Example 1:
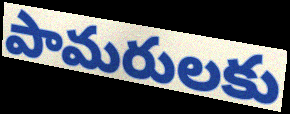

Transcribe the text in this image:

పామరులకు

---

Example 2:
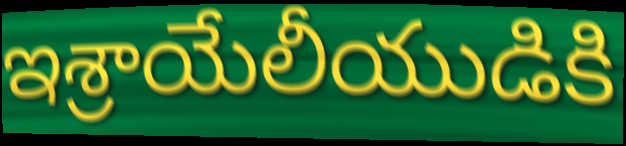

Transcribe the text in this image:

ఇశ్రాయేలీయుడికి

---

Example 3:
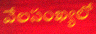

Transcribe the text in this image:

వేలసంఖ్యలో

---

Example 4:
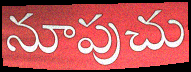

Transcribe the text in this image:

నూపుచు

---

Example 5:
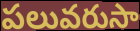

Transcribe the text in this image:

పలువరుసా